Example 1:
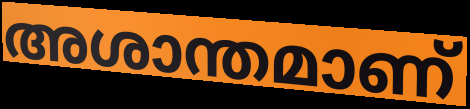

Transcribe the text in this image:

അശാന്തമാണ്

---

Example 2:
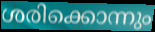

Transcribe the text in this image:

ശരിക്കൊന്നും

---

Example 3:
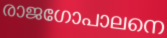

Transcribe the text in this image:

രാജഗോപാലനെ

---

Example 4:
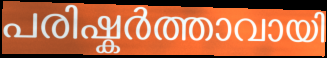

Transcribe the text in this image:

പരിഷ്കർത്താവായി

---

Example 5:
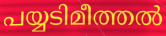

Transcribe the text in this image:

പയ്യടിമീത്തൽ